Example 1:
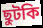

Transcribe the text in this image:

ছুটকি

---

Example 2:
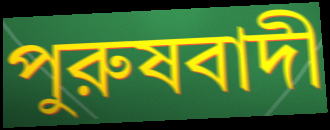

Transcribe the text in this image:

পুরুষবাদী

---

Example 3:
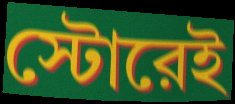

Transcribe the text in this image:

স্টোরেই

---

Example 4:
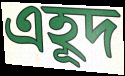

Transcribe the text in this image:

এহূদ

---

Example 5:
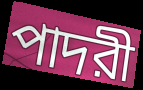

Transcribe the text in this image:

পাদরী